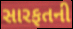
સારફતની